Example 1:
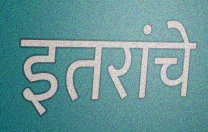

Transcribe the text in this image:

इतरांचे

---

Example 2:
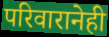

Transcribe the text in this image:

परिवारानेही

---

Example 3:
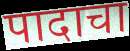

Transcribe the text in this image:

पादाचा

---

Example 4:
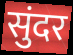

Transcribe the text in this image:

सुंदर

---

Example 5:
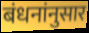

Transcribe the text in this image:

बंधनांनुसार